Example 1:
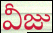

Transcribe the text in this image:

వీజు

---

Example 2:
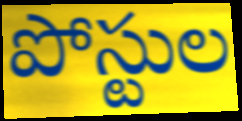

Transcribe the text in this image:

పోస్టుల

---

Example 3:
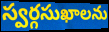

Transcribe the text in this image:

స్వర్గసుఖాలను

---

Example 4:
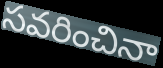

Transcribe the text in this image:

సవరించినా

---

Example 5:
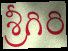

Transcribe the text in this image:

శ్రీగిరి